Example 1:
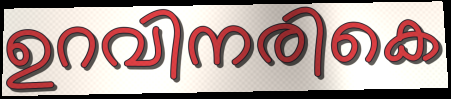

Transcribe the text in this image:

ഉറവിനരികെ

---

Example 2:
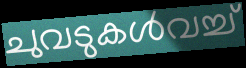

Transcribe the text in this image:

ചുവടുകൾവച്ച്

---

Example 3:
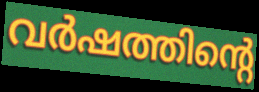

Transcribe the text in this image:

വർഷത്തിന്റെ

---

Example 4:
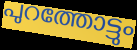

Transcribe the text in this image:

പുറത്തോട്ടും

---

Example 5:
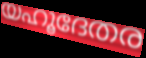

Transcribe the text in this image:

യഹൂദേതര